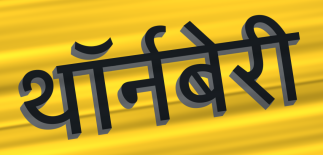
थॉर्नबेरी